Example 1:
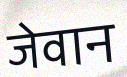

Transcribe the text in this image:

जेवान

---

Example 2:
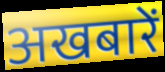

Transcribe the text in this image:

अखबारें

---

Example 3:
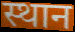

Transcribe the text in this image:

स्‍थान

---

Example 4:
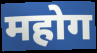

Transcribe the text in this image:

महोग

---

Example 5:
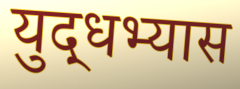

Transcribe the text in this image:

युद्धभ्यास